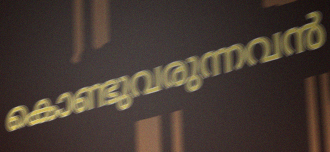
കൊണ്ടുവരുന്നവൻ